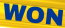
WON